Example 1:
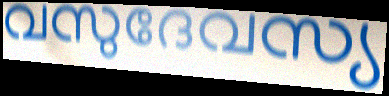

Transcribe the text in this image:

വസുദേവസ്യ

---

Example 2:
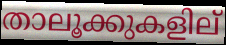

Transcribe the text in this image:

താലൂക്കുകളില്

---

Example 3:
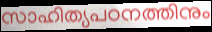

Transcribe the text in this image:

സാഹിത്യപഠനത്തിനും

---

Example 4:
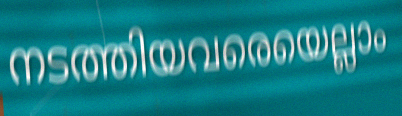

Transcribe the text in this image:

നടത്തിയവരെയെല്ലാം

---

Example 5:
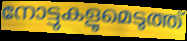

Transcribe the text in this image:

നോട്ടുകളുമെടുത്ത്